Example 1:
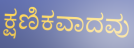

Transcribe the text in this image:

ಕ್ಷಣಿಕವಾದವು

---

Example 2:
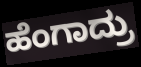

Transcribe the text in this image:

ಹೆಂಗಾದ್ರು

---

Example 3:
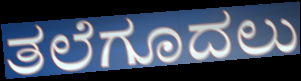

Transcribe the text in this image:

ತಲೆಗೂದಲು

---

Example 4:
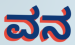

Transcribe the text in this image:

ವನ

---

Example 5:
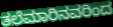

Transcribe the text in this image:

ತಲೆಮಾರಿನವರಿಂದ